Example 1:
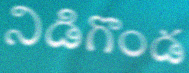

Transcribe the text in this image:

నిడిగొండ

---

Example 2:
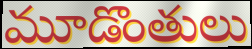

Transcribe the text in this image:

మూడొంతులు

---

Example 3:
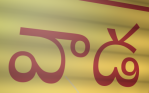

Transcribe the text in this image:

వాడ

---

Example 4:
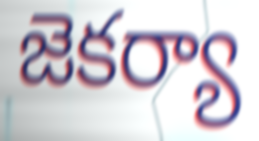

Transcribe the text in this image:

జెకర్యా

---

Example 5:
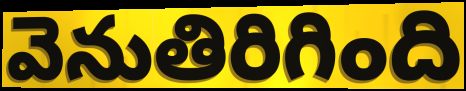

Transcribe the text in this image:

వెనుతిరిగింది